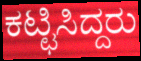
ಕಟ್ಟಿಸಿದ್ದರು